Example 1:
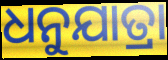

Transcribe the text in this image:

ଧନୁଯାତ୍ରା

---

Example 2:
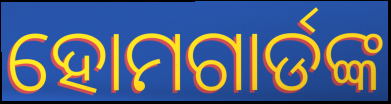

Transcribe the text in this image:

ହୋମଗାର୍ଡଙ୍କ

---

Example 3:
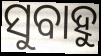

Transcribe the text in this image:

ସୁବାହୁ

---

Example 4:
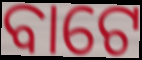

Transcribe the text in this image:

ବାଟେ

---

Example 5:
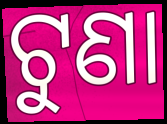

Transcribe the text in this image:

ଟୁଣା